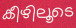
കീഴിലൂടെ